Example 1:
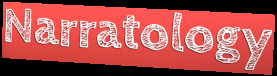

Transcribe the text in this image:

Narratology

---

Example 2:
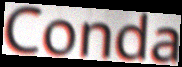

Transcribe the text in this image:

Conda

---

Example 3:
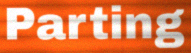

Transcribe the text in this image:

Parting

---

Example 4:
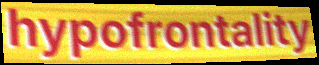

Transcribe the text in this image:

hypofrontality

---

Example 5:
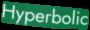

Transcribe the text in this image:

Hyperbolic